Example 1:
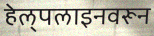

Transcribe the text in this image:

हेल्पलाइनवरून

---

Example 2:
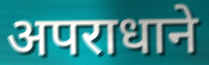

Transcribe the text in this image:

अपराधाने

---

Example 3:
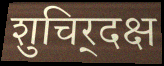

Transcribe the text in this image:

शुचिर्दक्ष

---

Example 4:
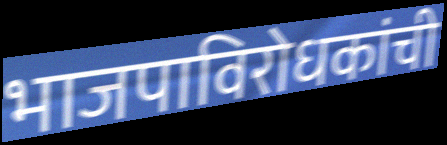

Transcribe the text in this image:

भाजपाविरोधकांची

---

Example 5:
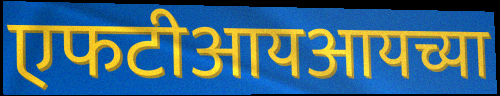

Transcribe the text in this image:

एफटीआयआयच्या